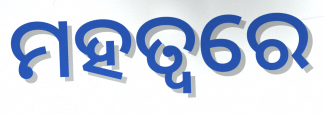
ମହତ୍ୱରେ